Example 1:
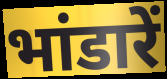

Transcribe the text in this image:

भांडारें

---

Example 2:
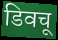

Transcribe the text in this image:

डिवचू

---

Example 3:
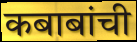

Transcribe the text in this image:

कबाबांची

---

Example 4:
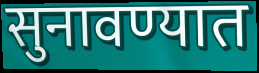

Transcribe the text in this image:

सुनावण्यात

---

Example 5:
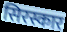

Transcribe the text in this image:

सिरस्कार